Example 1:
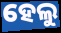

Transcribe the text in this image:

ହେଲୁ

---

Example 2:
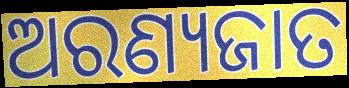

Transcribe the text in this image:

ଅରଣ୍ୟଜାତ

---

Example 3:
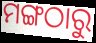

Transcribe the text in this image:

ମଙ୍ଗଠାରୁ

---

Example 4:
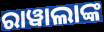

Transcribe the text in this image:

ରାୱାଲାଙ୍କ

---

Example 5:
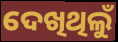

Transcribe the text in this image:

ଦେଖିଥିଲୁଁ